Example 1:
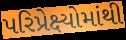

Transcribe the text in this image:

પરિપ્રેક્ષ્યોમાંથી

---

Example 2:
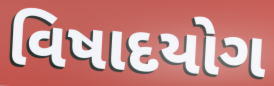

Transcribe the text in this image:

વિષાદયોગ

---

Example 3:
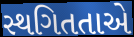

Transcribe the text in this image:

સ્થગિતતાએ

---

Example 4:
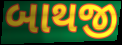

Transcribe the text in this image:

બાથજી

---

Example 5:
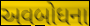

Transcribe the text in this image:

અવબોધના